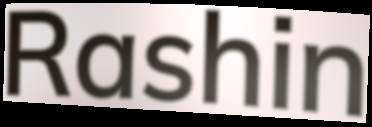
Rashin